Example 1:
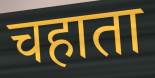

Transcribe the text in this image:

चहाता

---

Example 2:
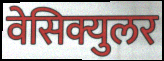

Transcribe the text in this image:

वेसिक्युलर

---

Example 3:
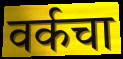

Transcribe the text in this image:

वर्कचा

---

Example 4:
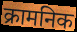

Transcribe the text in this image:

क्रामनिक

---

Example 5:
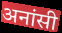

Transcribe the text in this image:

अनांसी